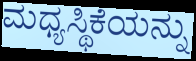
ಮಧ್ಯಸ್ಥಿಕೆಯನ್ನು